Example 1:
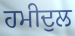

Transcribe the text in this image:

ਹਮੀਦੁਲ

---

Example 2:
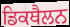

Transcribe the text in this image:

ਡਿਕਥੈਲਨ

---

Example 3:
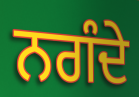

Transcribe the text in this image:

ਨਗੰਦੇ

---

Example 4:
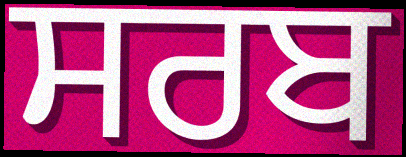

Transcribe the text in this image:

ਸਰਬ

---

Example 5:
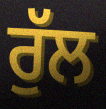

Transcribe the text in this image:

ਰੁੱਲ